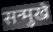
सन्मुखे